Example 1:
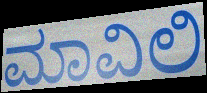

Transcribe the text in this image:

ಮಾವಿಲಿ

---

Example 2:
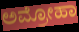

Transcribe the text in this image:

ಅಮ್ರೋಹಾ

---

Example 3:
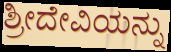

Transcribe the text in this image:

ಶ್ರೀದೇವಿಯನ್ನು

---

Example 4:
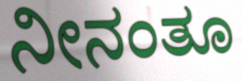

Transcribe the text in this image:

ನೀನಂತೂ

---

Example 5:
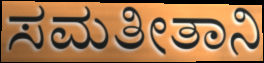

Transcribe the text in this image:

ಸಮತೀತಾನಿ